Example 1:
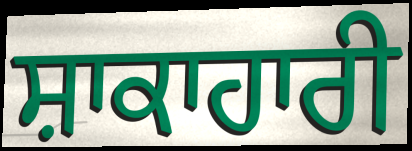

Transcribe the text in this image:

ਸ਼ਾਕਾਹਾਰੀ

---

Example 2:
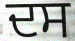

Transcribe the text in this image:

ਦਸ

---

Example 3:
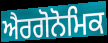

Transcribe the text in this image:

ਐਰਗੋਨੋਮਿਕ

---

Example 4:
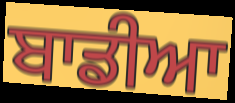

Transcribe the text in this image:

ਬਾਡੀਆ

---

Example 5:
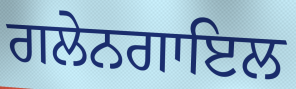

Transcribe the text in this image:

ਗਲੇਨਗਾਇਲ